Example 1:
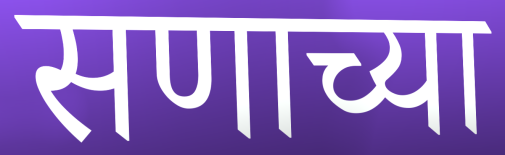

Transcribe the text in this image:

सणाच्या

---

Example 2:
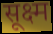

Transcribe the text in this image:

सूक्ष्म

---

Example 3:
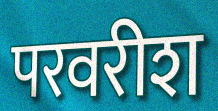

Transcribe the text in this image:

परवरीश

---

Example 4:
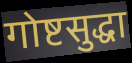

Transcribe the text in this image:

गोष्टसुद्धा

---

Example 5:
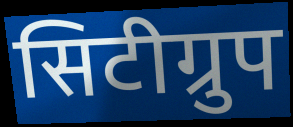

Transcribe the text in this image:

सिटीग्रुप